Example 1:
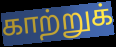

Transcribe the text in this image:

காற்றுக்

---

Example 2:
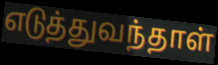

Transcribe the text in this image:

எடுத்துவந்தாள்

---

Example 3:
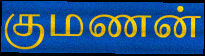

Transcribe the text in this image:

குமணன்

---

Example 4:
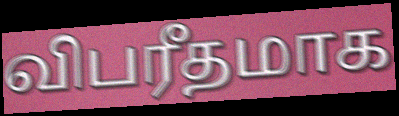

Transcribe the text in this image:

விபரீதமாக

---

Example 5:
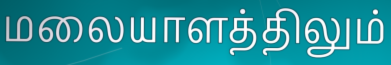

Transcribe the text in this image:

மலையாளத்திலும்